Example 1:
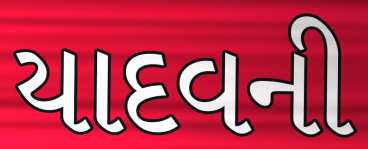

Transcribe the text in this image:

યાદવની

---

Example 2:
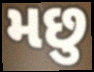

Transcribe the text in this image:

મછુ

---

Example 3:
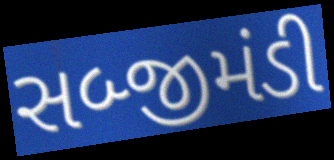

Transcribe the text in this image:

સબ્જીમંડી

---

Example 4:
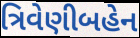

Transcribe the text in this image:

ત્રિવેણીબહેન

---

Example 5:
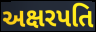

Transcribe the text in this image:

અક્ષરપતિ